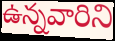
ఉన్నవారిని